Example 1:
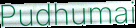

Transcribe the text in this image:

Pudhumai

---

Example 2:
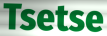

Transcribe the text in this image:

Tsetse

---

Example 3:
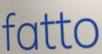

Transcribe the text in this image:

fatto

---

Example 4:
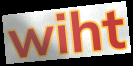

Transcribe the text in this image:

wiht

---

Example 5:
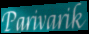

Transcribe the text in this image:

Parivarik